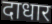
दाधार